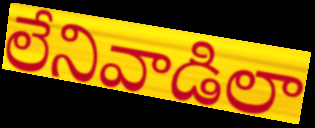
లేనివాడిలా